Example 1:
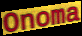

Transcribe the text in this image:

Onoma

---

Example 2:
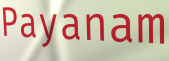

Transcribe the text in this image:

Payanam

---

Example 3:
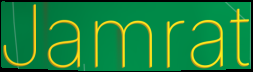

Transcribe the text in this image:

Jamrat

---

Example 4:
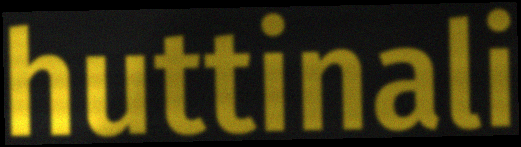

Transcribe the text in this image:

huttinali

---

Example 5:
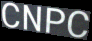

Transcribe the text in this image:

CNPC